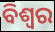
ବିଶ୍ଵର